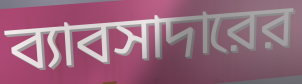
ব্যাবসাদারের